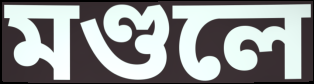
মণ্ডলে